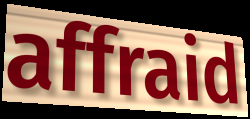
affraid